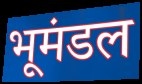
भूमंडल